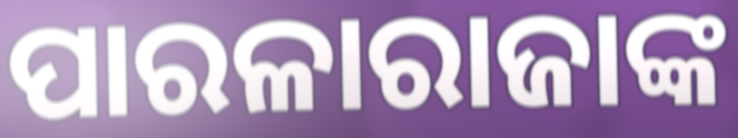
ପାରଳାରାଜାଙ୍କ